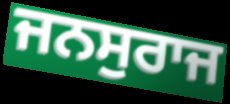
ਜਨਸੁਰਾਜ